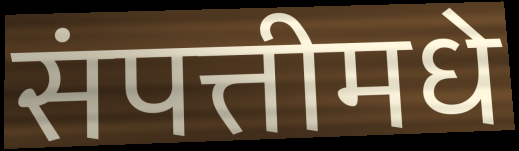
संपत्तीमधे